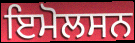
ਇਮੋਲਸਨ